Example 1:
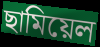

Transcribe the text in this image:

ছামিয়েল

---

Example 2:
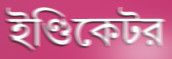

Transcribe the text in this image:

ইণ্ডিকেটর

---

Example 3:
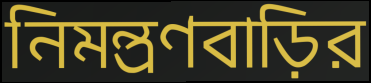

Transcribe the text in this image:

নিমন্ত্রণবাড়ির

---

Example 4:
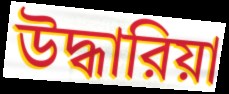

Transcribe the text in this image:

উদ্ধারিয়া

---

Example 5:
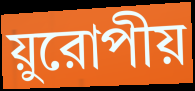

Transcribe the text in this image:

য়ুরোপীয়